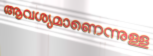
ആവശ്യമാണെന്നുള്ള